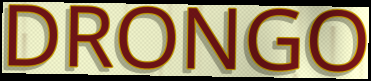
DRONGO